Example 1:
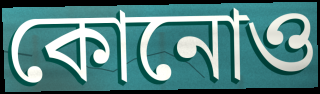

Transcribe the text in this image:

কোনোও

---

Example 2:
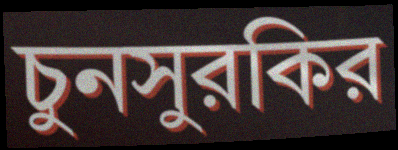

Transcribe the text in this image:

চুনসুরকির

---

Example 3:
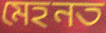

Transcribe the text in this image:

মেহনত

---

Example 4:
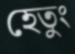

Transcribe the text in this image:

হেতুং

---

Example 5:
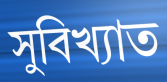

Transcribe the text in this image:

সুবিখ্যাত